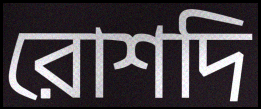
রোশদি